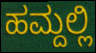
ಹಮ್ದಲ್ಲಿ